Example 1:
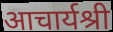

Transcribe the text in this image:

आचार्यश्री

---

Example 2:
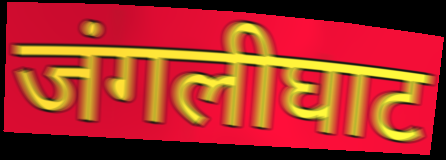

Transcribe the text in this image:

जंगलीघाट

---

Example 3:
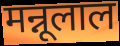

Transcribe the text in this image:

मन्नूलाल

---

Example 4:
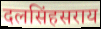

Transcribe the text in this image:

दलसिंहसराय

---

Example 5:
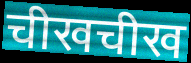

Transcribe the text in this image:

चीखचीख